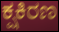
ಕ್ಷಕಿರಣ